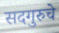
सदगुरुचे